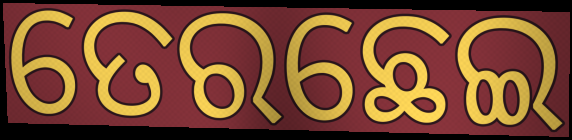
ତେରଛେଇ